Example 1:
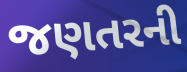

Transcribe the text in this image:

જણતરની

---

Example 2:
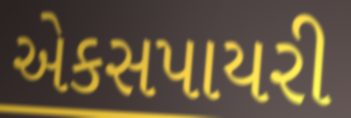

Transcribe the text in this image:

એકસપાયરી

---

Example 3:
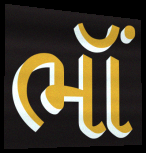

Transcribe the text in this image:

ભૉં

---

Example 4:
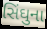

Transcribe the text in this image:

સિંઘુના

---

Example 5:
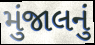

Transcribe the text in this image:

મુંજાલનું